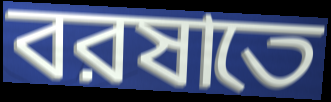
বরষাতে